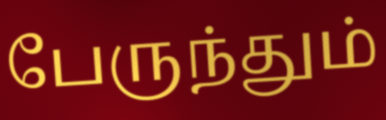
பேருந்தும்